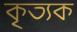
কৃত্যক